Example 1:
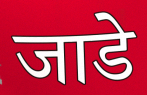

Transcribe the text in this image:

जाडे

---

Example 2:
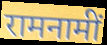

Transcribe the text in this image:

रामनामीं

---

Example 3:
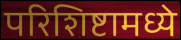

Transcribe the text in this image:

परिशिष्टामध्ये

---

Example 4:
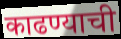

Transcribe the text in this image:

काढण्याची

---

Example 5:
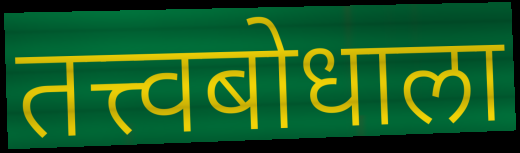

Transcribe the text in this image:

तत्त्वबोधाला